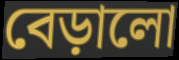
বেড়ালো